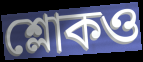
শ্লোকও